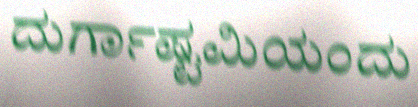
ದುರ್ಗಾಷ್ಟಮಿಯಂದು